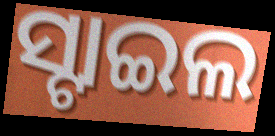
ସ୍ଟାଇଲ